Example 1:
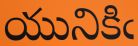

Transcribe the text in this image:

యునికిఁ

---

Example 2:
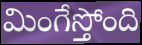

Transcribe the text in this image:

మింగేస్తోంది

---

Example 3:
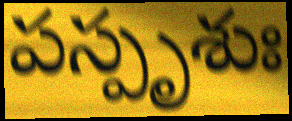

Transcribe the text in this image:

పస్పృశుః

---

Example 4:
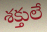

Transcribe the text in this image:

శక్తులే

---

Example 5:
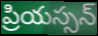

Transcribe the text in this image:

ప్రియస్సన్